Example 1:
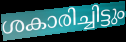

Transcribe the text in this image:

ശകാരിച്ചിട്ടും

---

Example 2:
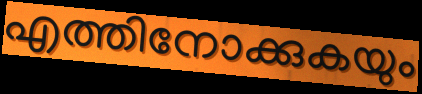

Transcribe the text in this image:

എത്തിനോക്കുകയും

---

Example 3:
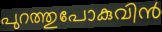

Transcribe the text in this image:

പുറത്തുപോകുവിൻ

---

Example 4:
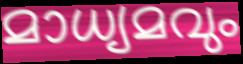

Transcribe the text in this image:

മാധ്യമവും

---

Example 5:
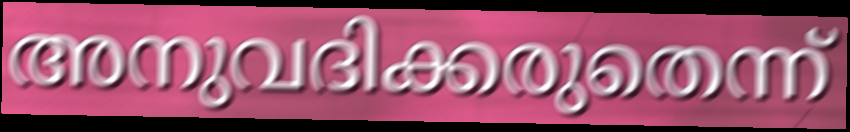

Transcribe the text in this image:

അനുവദിക്കരുതെന്ന്